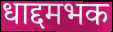
धाद्दमभक